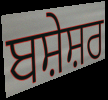
ਬਸ਼ੇਸ਼ਰ